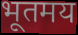
भूतमय